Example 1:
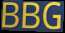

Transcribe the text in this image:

BBG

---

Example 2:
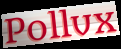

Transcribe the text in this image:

Pollux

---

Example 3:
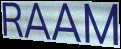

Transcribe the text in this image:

RAAM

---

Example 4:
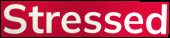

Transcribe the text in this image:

Stressed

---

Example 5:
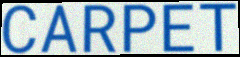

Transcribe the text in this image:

CARPET